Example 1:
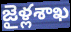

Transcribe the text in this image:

జైళ్లశాఖ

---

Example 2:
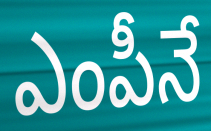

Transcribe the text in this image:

ఎంపీనే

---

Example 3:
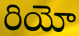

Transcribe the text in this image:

రియో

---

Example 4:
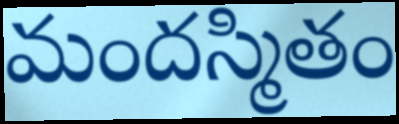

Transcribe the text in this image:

మందస్మితం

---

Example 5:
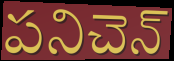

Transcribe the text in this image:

పనిచెన్